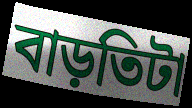
বাড়তিটা